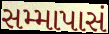
સમ્માપાસં